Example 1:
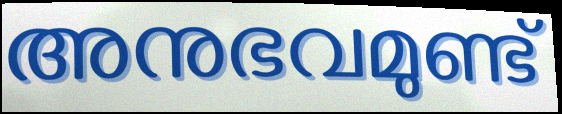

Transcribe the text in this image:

അനുഭവമുണ്ട്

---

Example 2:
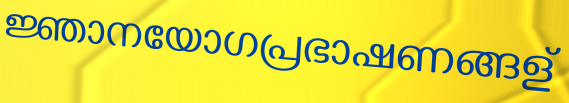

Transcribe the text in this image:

ജ്ഞാനയോഗപ്രഭാഷണങ്ങള്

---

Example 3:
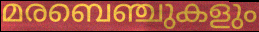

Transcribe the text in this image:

മരബെഞ്ചുകളും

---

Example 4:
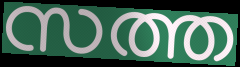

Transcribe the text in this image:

സത്ത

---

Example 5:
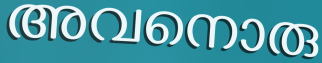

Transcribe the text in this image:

അവനൊരു